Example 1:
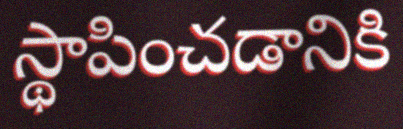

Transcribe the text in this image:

స్థాపించడానికి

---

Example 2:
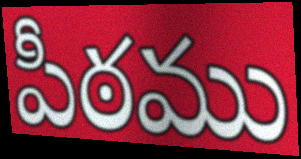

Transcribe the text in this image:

పీఠము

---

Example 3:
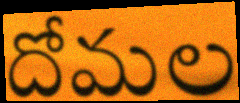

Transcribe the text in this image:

దోమల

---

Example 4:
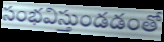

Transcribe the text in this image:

సంభవిస్తుండడంతో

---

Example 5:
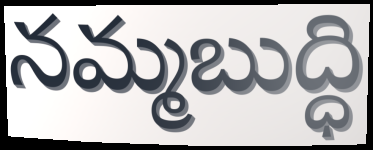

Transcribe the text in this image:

నమ్మబుద్ధి